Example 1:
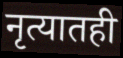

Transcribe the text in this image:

नृत्यातही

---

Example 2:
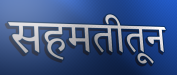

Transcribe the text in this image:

सहमतीतून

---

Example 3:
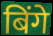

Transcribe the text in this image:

बिंगे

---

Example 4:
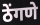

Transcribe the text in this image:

ठेंगणे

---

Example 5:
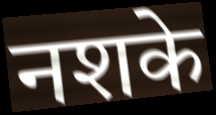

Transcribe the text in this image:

नशके